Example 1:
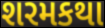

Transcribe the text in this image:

શરમકથા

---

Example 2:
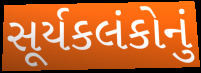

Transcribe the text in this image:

સૂર્યકલંકોનું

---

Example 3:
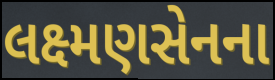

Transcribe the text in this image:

લક્ષ્મણસેનના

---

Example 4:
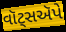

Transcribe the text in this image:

વૉટ્સઍપે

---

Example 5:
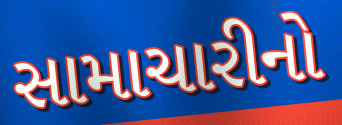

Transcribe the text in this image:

સામાચારીનો